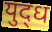
युद्ध